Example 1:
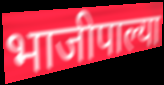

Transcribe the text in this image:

भाजीपाल्या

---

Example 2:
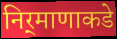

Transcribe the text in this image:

निर्माणाकडे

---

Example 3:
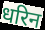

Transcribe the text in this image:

धरिन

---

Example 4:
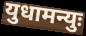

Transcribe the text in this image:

युधामन्युः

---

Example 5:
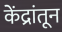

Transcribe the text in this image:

केंद्रांतून